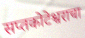
सप्तकोटेश्वराचा